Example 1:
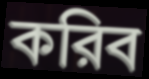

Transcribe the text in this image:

করিব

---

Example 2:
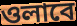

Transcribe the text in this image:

ওলাবে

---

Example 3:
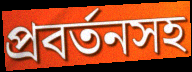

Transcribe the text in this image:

প্রবর্তনসহ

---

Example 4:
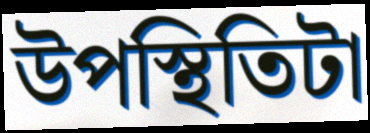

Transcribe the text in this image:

উপস্থিতিটা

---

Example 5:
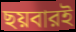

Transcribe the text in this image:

ছয়বারই